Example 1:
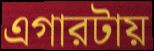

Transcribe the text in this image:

এগারটায়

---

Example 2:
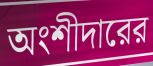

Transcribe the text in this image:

অংশীদারের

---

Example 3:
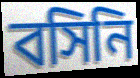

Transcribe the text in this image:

বসিনি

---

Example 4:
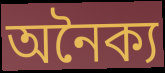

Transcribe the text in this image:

অনৈক্য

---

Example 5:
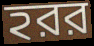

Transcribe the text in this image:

হরর